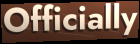
Officially